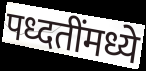
पध्दतींमध्ये